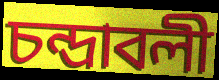
চন্দ্রাবলী